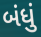
બંધું